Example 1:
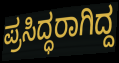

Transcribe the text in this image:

ಪ್ರಸಿದ್ಧರಾಗಿದ್ದ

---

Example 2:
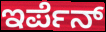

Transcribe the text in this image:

ಇರ್ಪೆನ್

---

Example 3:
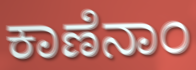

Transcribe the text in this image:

ಕಾಣೆನಾಂ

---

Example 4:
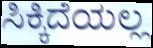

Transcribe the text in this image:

ಸಿಕ್ಕಿದೆಯಲ್ಲ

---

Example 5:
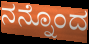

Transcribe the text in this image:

ನನ್ನೊಂದ